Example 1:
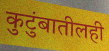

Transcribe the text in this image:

कुटुंबातीलही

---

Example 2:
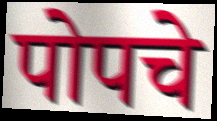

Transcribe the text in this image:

पोपचे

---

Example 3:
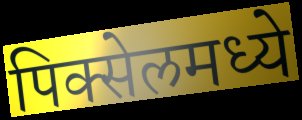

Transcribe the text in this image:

पिक्सेलमध्ये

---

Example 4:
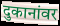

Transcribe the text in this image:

दुकानांवर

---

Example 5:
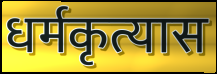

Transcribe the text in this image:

धर्मकृत्यास